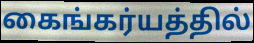
கைங்கர்யத்தில்